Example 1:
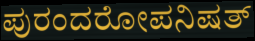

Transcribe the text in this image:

ಪುರಂದರೋಪನಿಷತ್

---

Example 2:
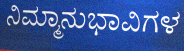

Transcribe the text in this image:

ನಿಮ್ಮಾನುಭಾವಿಗಳ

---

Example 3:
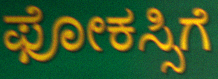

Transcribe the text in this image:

ಫೋಕಸ್ಸಿಗೆ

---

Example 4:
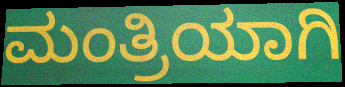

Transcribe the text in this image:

ಮಂತ್ರಿಯಾಗಿ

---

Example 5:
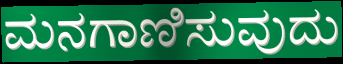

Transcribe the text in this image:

ಮನಗಾಣಿಸುವುದು